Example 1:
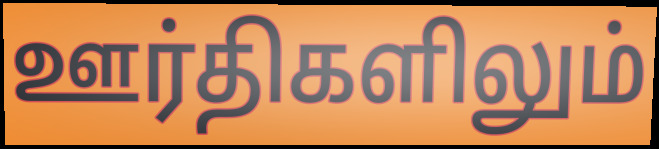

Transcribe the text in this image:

ஊர்திகளிலும்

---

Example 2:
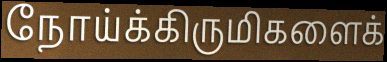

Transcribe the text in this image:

நோய்க்கிருமிகளைக்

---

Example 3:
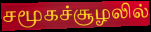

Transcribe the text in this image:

சமூகச்சூழலில்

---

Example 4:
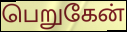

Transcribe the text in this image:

பெறுகேன்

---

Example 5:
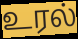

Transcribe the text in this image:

உரல்